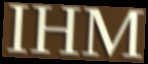
IHM